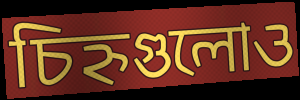
চিহ্নগুলোও